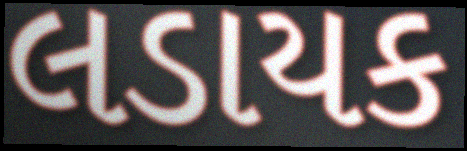
લડાયક